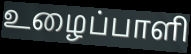
உழைப்பாளி